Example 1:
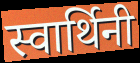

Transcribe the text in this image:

स्वार्थिनी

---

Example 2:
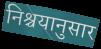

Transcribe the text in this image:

निश्चयानुसार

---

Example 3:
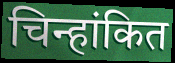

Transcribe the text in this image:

चिन्हांकित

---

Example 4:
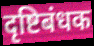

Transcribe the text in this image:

दृष्टिबंधक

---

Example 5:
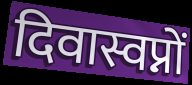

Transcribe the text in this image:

दिवास्वप्नों